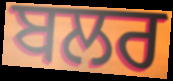
ਬਲਰ